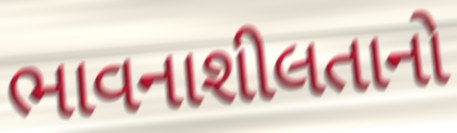
ભાવનાશીલતાનો